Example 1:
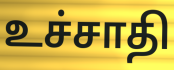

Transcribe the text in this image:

உச்சாதி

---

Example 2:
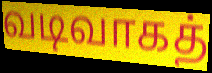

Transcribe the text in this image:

வடிவாகத்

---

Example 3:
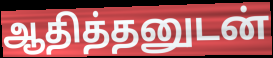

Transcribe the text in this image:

ஆதித்தனுடன்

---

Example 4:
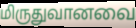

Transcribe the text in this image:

மிருதுவானவை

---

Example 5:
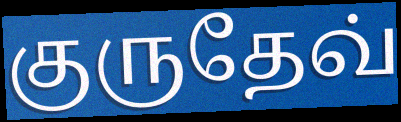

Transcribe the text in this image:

குருதேவ்